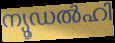
ന്യൂഡൽഹി